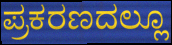
ಪ್ರಕರಣದಲ್ಲೂ